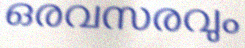
ഒരവസരവും